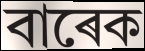
বাৰেক